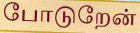
போடுறேன்